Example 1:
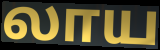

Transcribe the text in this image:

லாய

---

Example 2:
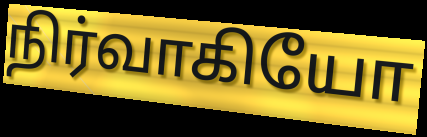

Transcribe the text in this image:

நிர்வாகியோ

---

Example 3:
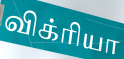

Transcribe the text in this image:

விக்ரியா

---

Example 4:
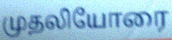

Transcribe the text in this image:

முதலியோரை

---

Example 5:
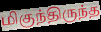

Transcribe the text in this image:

மிகுந்திருந்த